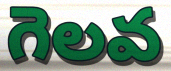
గెలవ